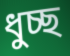
ধুচ্ছ